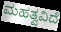
ಮಹತ್ವವಿದೆ